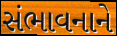
સંભાવનાને